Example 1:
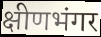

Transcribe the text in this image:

क्षीणभंगर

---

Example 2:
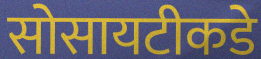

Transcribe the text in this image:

सोसायटीकडे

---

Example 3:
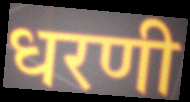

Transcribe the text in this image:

धरणी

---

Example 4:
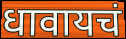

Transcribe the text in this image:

धावायचं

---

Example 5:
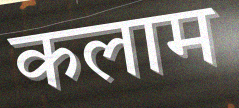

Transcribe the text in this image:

कलाम